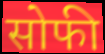
सोफी